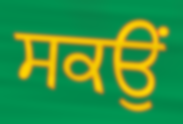
ਸਕਉਂ